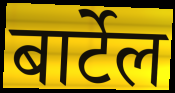
बार्टेल